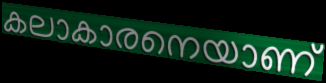
കലാകാരനെയാണ്